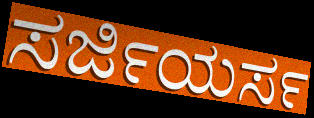
ಸರ್ಜಿಯರ್ಸ